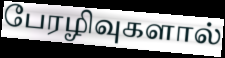
பேரழிவுகளால்